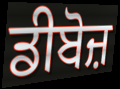
ਡੀਬੋਜ਼